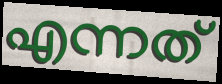
എന്നത്